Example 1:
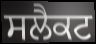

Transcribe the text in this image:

ਸਲੈਕਟ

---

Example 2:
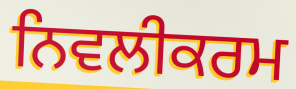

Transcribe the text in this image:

ਨਿਵਲੀਕਰਮ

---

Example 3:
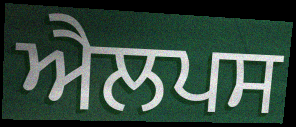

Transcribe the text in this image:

ਐਲਪਸ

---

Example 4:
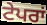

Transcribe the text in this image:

ਟੇਪਰਾਂ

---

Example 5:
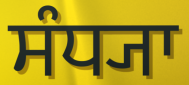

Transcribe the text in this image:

ਸੰਧ੍ਯਾ